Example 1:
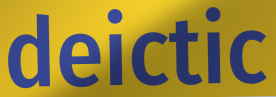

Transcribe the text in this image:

deictic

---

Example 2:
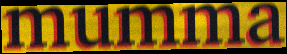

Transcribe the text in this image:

mumma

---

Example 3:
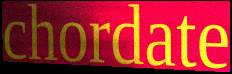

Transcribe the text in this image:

chordate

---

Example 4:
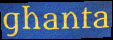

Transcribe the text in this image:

ghanta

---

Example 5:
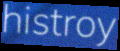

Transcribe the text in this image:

histroy